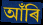
আঁৰি